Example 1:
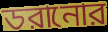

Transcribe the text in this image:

ডরানোর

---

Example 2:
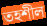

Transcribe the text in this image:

তহশীল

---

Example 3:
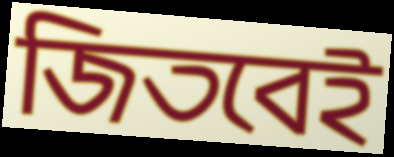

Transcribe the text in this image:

জিতবেই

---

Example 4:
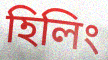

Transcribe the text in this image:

হিলিং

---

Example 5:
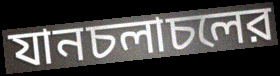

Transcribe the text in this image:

যানচলাচলের